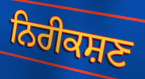
ਨਿਰੀਕਸ਼ਣ